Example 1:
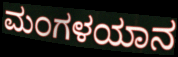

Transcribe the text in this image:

ಮಂಗಳಯಾನ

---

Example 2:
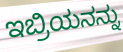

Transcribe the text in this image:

ಇಬ್ರಿಯನನ್ನು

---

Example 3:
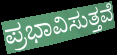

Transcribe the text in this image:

ಪ್ರಭಾವಿಸುತ್ತವೆ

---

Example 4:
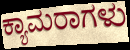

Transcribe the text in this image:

ಕ್ಯಾಮರಾಗಳು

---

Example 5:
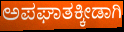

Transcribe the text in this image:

ಅಪಘಾತಕ್ಕೀಡಾಗಿ